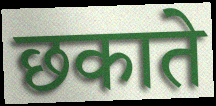
छकाते